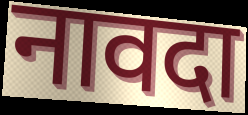
नावदा